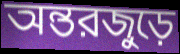
অন্তরজুড়ে